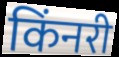
किंनरी